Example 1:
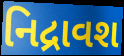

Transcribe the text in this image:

નિદ્રાવશ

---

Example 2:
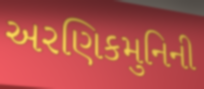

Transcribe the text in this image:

અરણિકમુનિની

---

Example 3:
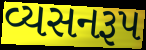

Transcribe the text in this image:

વ્યસનરૂપ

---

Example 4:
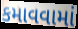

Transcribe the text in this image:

કમાવવામાં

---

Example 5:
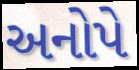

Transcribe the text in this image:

અનોપે